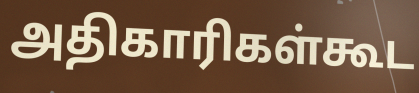
அதிகாரிகள்கூட